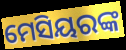
ମେସିୟରଙ୍କ